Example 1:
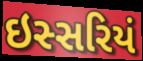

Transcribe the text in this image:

ઇસ્સરિયં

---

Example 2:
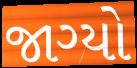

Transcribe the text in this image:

જાગ્યો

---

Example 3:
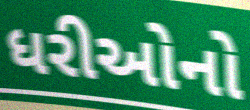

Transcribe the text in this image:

ધરીઓનો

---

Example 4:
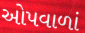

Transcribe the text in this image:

ઓપવાળાં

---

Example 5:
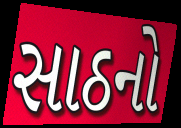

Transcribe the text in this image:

સાઠનો